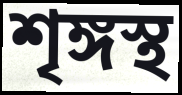
শৃঙ্গস্থ